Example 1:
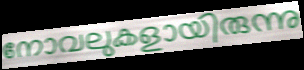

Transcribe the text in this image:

നോവലുകളായിരുന്നു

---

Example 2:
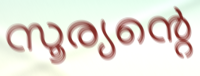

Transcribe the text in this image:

സൂര്യന്റെ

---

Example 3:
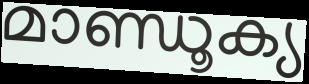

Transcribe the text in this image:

മാണ്ഡൂക്യ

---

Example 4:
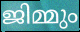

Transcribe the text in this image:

ജിമ്മും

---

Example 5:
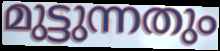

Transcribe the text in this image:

മുട്ടുന്നതും